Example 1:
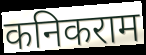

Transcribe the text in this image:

कनिकराम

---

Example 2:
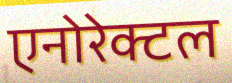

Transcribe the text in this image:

एनोरेक्टल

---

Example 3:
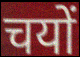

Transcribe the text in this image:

चयों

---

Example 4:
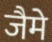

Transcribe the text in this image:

जैमे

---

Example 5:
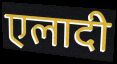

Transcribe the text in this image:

एलादी